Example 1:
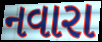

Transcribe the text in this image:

નવારા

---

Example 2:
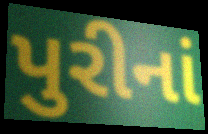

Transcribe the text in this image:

પુરીનાં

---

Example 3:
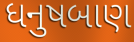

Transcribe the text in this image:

ધનુષબાણ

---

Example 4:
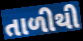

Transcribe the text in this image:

તાળીથી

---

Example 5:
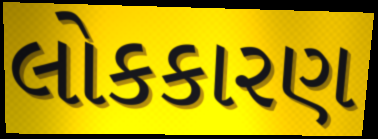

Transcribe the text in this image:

લોકકારણ